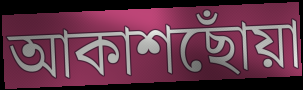
আকাশছোঁয়া